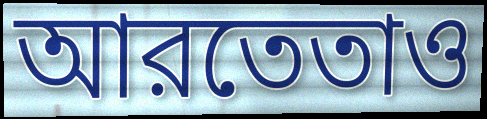
আরতেতাও